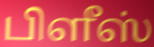
பிளீஸ்